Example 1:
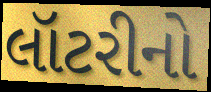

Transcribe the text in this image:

લૉટરીનો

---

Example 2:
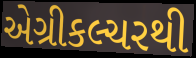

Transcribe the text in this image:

એગ્રીકલ્ચરથી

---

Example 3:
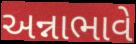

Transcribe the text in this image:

અન્નાભાવે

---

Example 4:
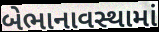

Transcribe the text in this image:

બેભાનાવસ્થામાં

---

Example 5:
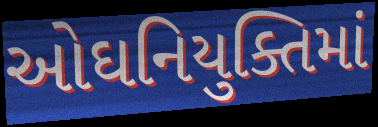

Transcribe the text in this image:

ઓઘનિયુક્તિમાં